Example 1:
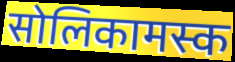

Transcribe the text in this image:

सोलिकामस्क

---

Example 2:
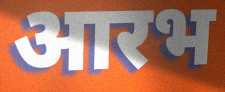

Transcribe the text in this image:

आरभ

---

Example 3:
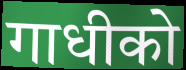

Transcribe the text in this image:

गाधीको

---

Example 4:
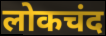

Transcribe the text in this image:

लोकचंद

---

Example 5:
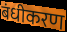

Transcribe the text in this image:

बंधीकरण